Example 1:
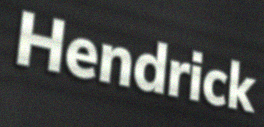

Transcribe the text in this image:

Hendrick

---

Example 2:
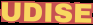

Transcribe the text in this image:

UDISE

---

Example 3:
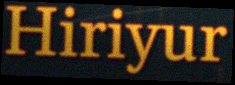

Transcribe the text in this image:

Hiriyur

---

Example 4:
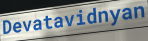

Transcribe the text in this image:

Devatavidnyan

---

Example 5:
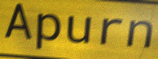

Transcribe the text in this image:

Apurn